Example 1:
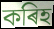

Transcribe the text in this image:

কৰিহ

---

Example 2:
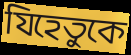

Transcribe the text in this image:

যিহেতুকে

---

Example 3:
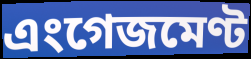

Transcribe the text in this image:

এংগেজমেণ্ট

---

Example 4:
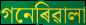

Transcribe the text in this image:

গনেৰিৱালা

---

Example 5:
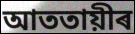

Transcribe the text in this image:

আততায়ীৰ